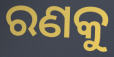
ରଣକୁ